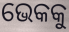
ଭେକକୁ